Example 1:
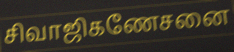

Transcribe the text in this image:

சிவாஜிகணேசனை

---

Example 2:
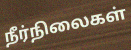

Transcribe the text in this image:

நீர்நிலைகள்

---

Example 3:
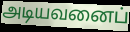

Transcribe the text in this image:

அடியவனைப்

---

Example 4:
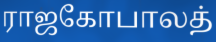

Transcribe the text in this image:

ராஜகோபாலத்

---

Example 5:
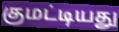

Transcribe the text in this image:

குமட்டியது